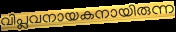
വിപ്ലവനായകനായിരുന്ന